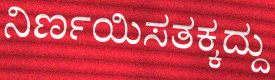
ನಿರ್ಣಯಿಸತಕ್ಕದ್ದು